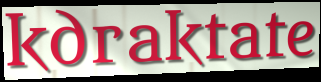
kdraktate